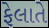
ફેલાતે